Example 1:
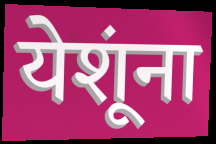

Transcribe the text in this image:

येशूंना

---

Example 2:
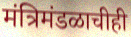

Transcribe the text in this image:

मंत्रिमंडळाचीही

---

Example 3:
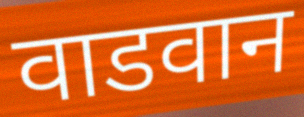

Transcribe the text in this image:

वाडवान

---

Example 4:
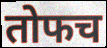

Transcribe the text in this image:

तोफच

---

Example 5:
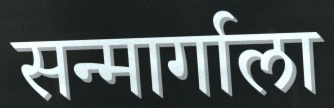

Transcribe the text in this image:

सन्मार्गाला